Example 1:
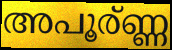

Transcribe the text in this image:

അപൂര്ണ്ണ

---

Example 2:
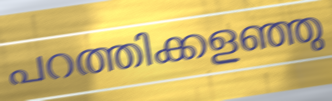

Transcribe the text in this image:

പറത്തിക്കളഞ്ഞു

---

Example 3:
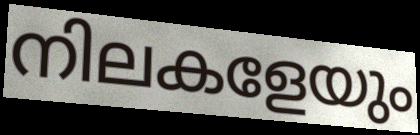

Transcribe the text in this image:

നിലകളേയും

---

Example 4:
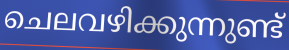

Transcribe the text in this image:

ചെലവഴിക്കുന്നുണ്ട്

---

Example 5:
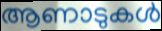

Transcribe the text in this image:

ആണാടുകൾ